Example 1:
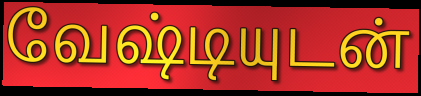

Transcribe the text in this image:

வேஷ்டியுடன்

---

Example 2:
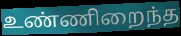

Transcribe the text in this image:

உண்ணிறைந்த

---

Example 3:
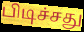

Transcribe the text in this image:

பிடிச்சது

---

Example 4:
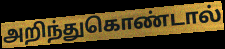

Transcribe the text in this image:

அறிந்துகொண்டால்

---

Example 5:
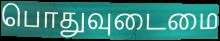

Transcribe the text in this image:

பொதுவுடைமை